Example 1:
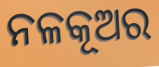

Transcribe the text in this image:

ନଳକୂଅର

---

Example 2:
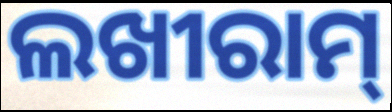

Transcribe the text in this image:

ଲଖୀରାମ୍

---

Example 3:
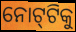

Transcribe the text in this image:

ନୋଟ୍‌ଟିକୁ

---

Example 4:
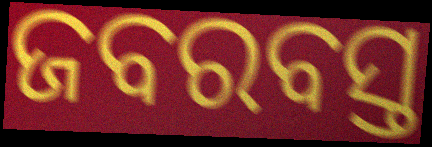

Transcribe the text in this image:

ଜବରବସ୍ତ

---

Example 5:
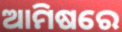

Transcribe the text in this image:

ଆମିଷରେ